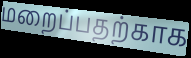
மறைப்பதற்காக